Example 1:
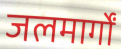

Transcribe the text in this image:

जलमार्गों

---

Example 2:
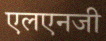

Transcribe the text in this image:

एलएनजी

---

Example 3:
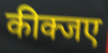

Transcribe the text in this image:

कीक्जए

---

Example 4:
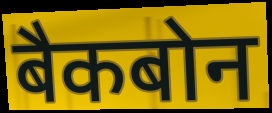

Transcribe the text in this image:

बैकबोन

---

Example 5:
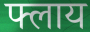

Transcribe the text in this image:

फ्लाय